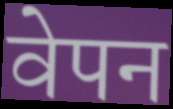
वेपन